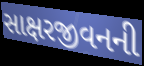
સાક્ષરજીવનની